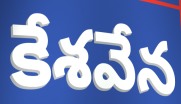
కేశవేన